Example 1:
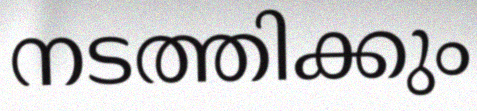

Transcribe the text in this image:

നടത്തിക്കും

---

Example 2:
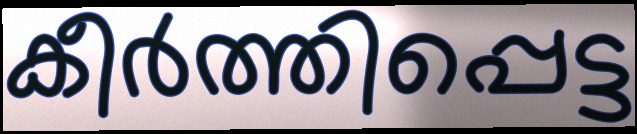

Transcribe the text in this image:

കീർത്തിപ്പെട്ട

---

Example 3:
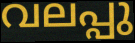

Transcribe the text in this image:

വലപ്പു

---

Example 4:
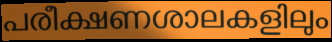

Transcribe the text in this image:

പരീക്ഷണശാലകളിലും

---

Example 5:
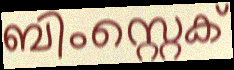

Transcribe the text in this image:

ബിംസ്റ്റെക്